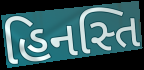
હિનસ્તિ